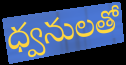
ధ్వనులతో